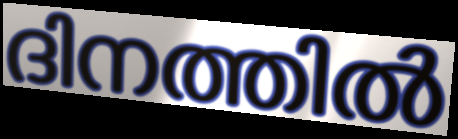
ദിനത്തിൽ